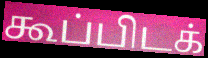
கூப்பிடக்